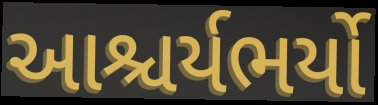
આશ્ચર્યભર્યો